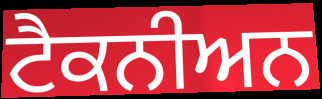
ਟੈਕਨੀਅਨ